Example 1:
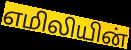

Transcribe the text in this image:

எமிலியின்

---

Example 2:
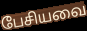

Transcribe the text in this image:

பேசியவை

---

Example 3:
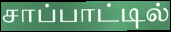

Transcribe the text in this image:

சாப்பாட்டில்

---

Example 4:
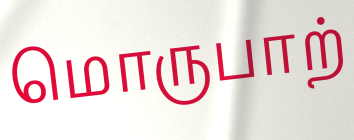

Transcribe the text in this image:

மொருபாற்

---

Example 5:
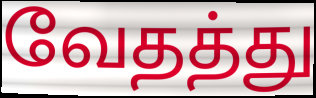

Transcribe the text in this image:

வேதத்து